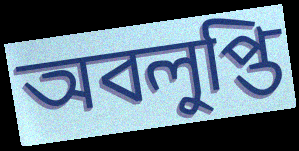
অবলুপ্তি